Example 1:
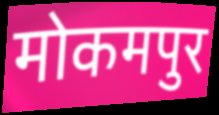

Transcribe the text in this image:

मोकमपुर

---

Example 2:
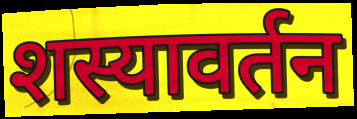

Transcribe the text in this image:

शस्यावर्तन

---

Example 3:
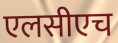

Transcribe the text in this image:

एलसीएच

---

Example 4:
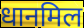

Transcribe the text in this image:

धानमिल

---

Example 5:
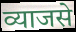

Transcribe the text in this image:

व्याजसे